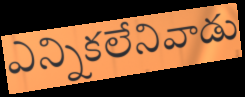
ఎన్నికలేనివాడు